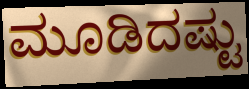
ಮೂಡಿದಷ್ಟು